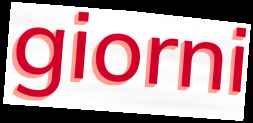
giorni